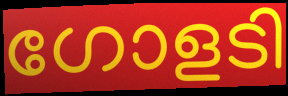
ഗോളടി